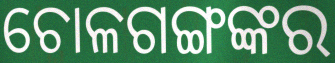
ଚୋଳଗଙ୍ଗଙ୍କର